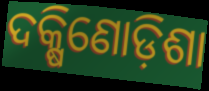
ଦକ୍ଷିଣୋଡ଼ିଶା